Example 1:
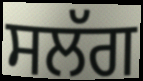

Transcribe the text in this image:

ਸਲੱਗ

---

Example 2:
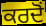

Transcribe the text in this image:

ਕਰਦੋਂ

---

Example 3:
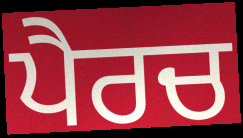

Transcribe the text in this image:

ਪੈਰਚ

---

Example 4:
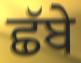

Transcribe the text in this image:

ਛੱਬੇ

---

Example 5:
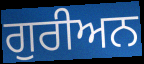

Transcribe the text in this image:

ਗੁਰੀਅਨ